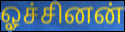
ஓச்சினன்